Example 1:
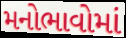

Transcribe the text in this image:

મનોભાવોમાં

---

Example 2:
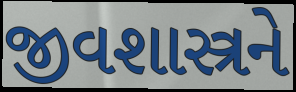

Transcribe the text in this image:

જીવશાસ્ત્રને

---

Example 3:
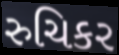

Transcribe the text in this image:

રુચિકર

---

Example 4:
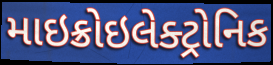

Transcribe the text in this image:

માઇક્રોઇલેક્ટ્રોનિક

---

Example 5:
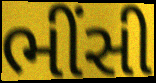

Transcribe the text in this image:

ભીંસી